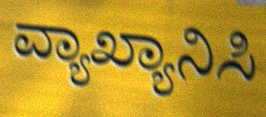
ವ್ಯಾಖ್ಯಾನಿಸಿ